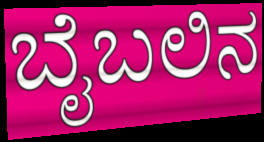
ಬೈಬಲಿನ